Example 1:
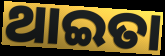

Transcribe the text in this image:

ଥାଇତା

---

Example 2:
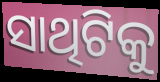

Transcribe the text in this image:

ସାଥିଟିକୁ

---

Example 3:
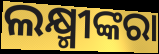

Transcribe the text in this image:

ଲକ୍ଷ୍ମୀଙ୍କରା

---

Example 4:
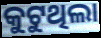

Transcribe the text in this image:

କୁଟୁଥିଲା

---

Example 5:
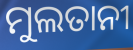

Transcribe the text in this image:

ମୁଲତାନୀ